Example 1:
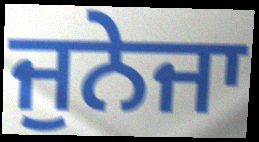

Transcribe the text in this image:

ਜੁਨੇਜਾ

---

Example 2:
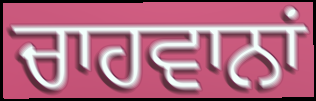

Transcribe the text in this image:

ਚਾਹਵਾਨਾਂ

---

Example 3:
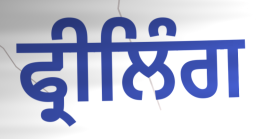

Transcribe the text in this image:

ਫ੍ਰੀਲਿੰਗ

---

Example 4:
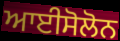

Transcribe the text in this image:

ਆਈਸੋਲੋਨ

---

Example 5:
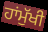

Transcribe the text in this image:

ਹਾਂਮੁੱਖੀ